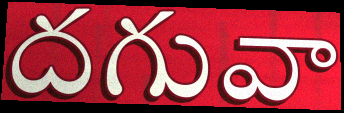
దగువా